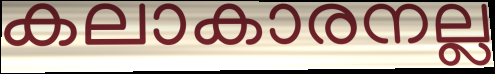
കലാകാരനല്ല